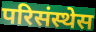
परिसंस्थेस